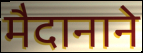
मैदानाने